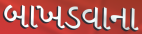
બાખડવાના